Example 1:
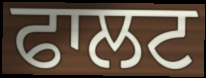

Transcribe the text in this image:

ਫਾਲਟ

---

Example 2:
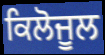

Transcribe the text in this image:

ਕਿਲੋਜੂਲ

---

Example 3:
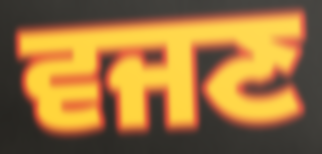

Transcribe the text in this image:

ਵਜਣ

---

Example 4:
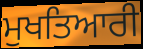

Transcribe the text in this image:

ਮੁਖਤਿਆਰੀ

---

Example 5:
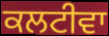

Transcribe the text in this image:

ਕਲਟੀਵਾ